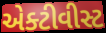
એક્ટીવીસ્ટ